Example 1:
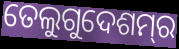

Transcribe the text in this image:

ତେଲୁଗୁଦେଶମ୍‌ର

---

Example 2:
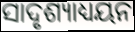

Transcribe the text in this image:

ସାଦୃଶ୍ୟାଧ୍ୟୟନ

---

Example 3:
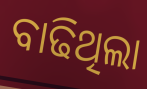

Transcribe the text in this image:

ବାଢିଥିଲା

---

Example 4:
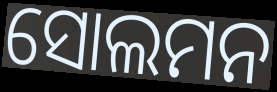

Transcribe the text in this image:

ସୋଲମନ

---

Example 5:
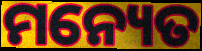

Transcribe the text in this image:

ମନ୍ୟେତ